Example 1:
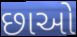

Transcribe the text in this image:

છાઓ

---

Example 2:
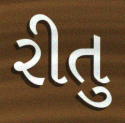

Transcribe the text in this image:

રીતુ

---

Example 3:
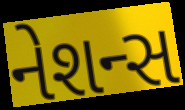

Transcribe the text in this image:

નેશન્સ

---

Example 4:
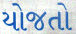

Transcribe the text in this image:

યોજતો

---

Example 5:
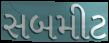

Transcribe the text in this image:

સબમીટ